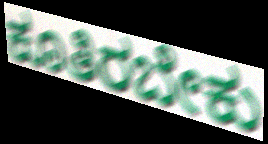
ಕೂತಿರಬೇಕು